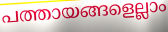
പത്തായങ്ങളെല്ലാം